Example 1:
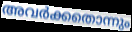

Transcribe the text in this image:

അവർക്കതൊന്നും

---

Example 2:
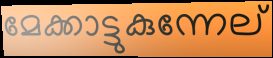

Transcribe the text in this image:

മേക്കാട്ടുകുന്നേല്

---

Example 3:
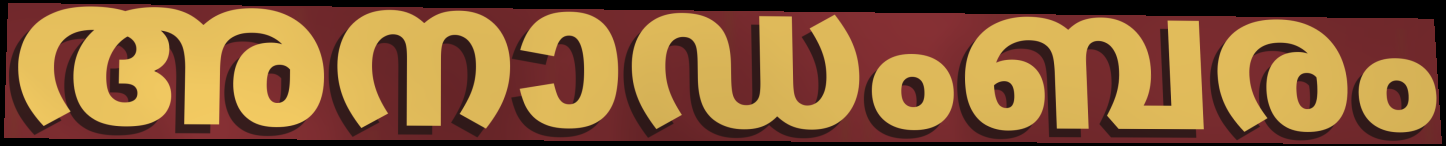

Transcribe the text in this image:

അനാഡംബരം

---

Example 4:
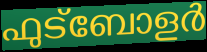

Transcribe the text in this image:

ഫുട്ബോളർ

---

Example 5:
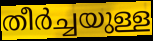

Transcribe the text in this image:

തീർച്ചയുള്ള